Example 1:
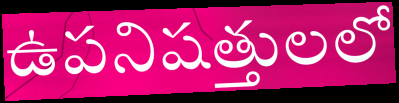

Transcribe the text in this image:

ఉపనిషత్తులలో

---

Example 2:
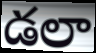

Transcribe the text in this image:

డలా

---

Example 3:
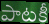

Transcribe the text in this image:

పాటకీ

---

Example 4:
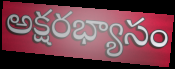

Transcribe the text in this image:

అక్షరభ్యాసం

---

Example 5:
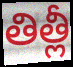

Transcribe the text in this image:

తిత్లీ